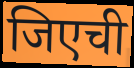
जिएची